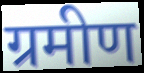
ग्रमीण